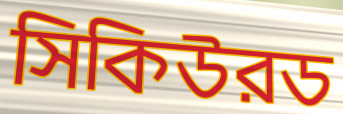
সিকিউরড